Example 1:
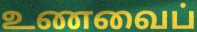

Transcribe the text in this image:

உணவைப்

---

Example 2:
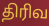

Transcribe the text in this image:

திரிவ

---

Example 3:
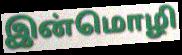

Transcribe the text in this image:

இன்மொழி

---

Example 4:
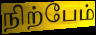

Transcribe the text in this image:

நிற்பேம்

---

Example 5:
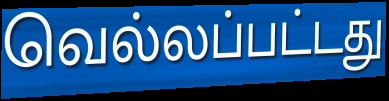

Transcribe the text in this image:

வெல்லப்பட்டது